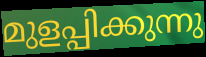
മുളപ്പിക്കുന്നു